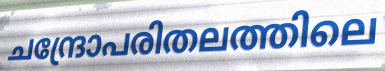
ചന്ദ്രോപരിതലത്തിലെ